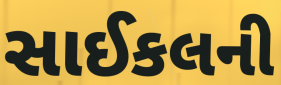
સાઈકલની